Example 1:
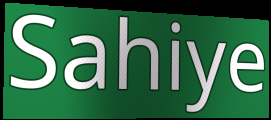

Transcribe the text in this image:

Sahiye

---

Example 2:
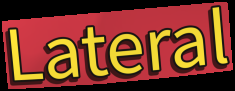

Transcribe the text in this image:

Lateral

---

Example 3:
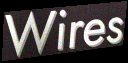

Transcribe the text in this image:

Wires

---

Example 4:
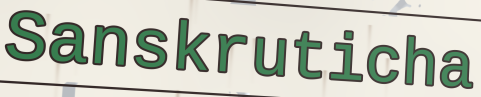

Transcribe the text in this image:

Sanskruticha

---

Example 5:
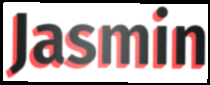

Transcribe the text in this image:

Jasmin